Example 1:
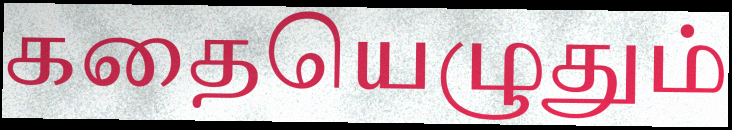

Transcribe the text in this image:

கதையெழுதும்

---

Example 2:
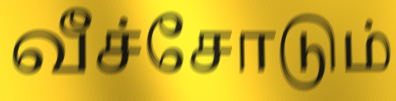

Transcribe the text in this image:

வீச்சோடும்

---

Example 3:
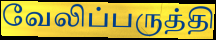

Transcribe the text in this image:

வேலிப்பருத்தி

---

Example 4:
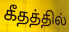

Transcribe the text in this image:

கீதத்தில்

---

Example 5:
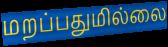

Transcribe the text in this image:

மறப்பதுமில்லை